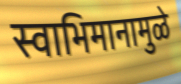
स्वाभिमानामुळे